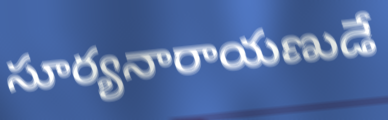
సూర్యనారాయణుడే